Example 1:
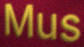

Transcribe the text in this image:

Mus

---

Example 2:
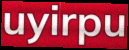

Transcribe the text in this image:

uyirpu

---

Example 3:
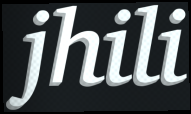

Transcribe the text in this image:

jhili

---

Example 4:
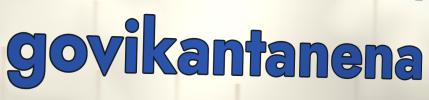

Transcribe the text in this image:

govikantanena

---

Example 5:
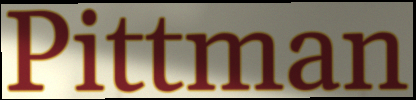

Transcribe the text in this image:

Pittman